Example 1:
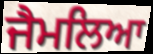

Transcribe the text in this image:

ਜੈਮਲਿਆ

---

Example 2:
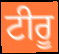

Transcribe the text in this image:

ਟੀਰੂ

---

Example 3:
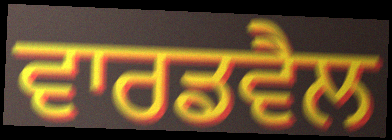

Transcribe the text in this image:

ਵਾਰਡਵੈਲ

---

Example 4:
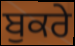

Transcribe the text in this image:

ਬੁਕਰੇ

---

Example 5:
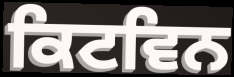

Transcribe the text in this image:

ਕਿਟਵਿਨ